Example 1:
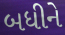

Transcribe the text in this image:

બધીને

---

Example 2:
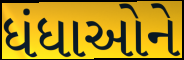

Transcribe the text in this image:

ધંધાઓને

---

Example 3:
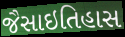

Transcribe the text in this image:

જૈસાઇતિહાસ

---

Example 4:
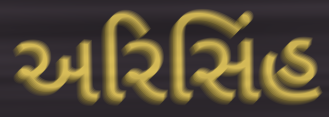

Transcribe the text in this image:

અરિસિંહ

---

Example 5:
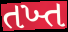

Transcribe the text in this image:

તખ્ત